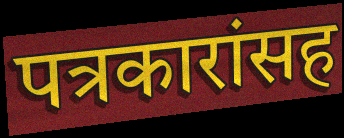
पत्रकारांसह